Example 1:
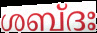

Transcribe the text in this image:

ശബ്ദഃ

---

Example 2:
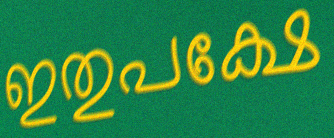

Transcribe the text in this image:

ഇതുപക്ഷേ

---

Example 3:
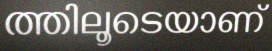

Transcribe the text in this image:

ത്തിലൂടെയാണ്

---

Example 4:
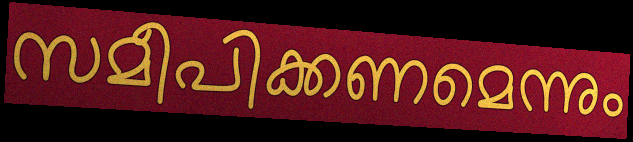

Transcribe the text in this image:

സമീപിക്കണമെന്നും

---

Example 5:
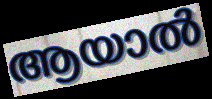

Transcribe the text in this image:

ആയാൽ